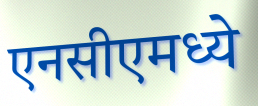
एनसीएमध्ये